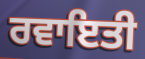
ਰਵਾਇਤੀ